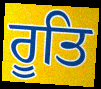
ਰੂਤਿ